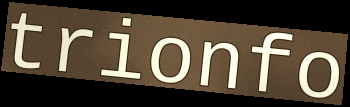
trionfo